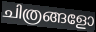
ചിത്രങ്ങളോ